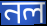
নল